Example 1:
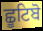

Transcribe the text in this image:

ਛੂਟਿਬੋ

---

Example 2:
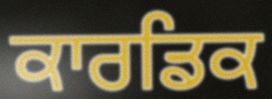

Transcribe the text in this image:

ਕਾਰਡਿਕ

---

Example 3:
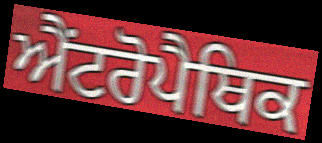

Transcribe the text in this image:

ਐਂਟਰੋਪੈਥਿਕ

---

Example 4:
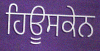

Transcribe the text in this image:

ਹਿਊਸਕੇਨ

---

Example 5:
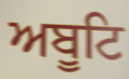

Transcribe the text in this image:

ਅਬੂਟਿ